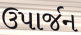
ઉપાર્જન